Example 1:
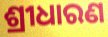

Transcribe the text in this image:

ଶ୍ରୀଧାରଣ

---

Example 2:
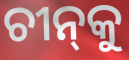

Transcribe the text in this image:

ଚୀନ୍‌କୁ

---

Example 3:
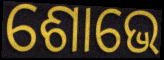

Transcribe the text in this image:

ଶୋଭେ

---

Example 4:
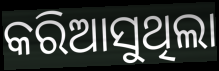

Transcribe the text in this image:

କରିଆସୁଥିଲା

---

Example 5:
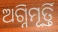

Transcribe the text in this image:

ଅଗ୍ନିମୂର୍ତ୍ତି